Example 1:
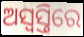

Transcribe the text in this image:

ଅସ୍ୱସ୍ତିରେ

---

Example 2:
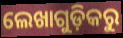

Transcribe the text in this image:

ଲେଖାଗୁଡ଼ିକରୁ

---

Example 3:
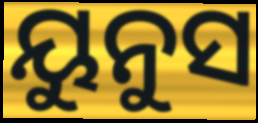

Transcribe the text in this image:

ୟୁନୁସ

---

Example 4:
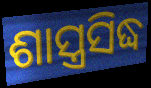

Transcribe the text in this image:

ଶାସ୍ତ୍ରସିଦ୍ଧ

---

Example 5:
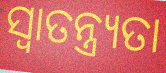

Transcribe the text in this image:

ସ୍ୱାତନ୍ତ୍ର୍ୟତା